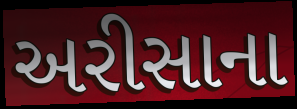
અરીસાના